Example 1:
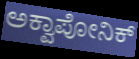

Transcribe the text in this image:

ಅಕ್ವಾಪೋನಿಕ್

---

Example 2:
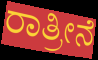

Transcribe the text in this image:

ರಾತ್ರೀನೆ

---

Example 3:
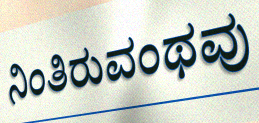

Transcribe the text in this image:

ನಿಂತಿರುವಂಥವು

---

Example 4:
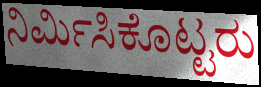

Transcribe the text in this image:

ನಿರ್ಮಿಸಿಕೊಟ್ಟರು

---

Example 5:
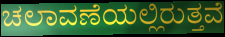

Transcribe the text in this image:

ಚಲಾವಣೆಯಲ್ಲಿರುತ್ತವೆ